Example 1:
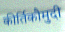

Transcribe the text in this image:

कीर्तिकौमुदी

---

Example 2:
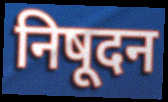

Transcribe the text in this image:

निषूदन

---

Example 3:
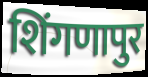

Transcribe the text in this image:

शिंगणापुर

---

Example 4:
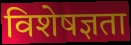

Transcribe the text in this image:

विशेषज्ञता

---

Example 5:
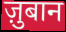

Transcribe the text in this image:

ज़ुबान